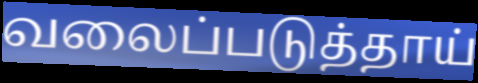
வலைப்படுத்தாய்